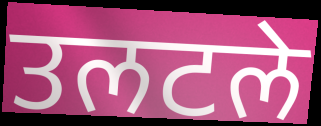
उलटले